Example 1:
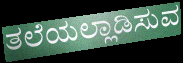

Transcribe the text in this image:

ತಲೆಯಲ್ಲಾಡಿಸುವ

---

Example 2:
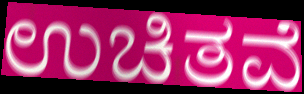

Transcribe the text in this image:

ಉಚಿತವೆ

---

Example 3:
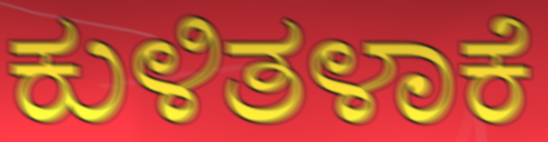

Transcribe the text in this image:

ಕುಳಿತಳಾಕೆ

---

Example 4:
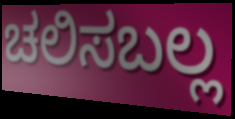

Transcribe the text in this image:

ಚಲಿಸಬಲ್ಲ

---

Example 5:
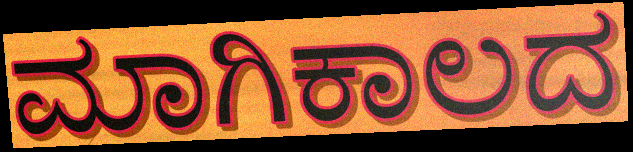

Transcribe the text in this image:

ಮಾಗಿಕಾಲದ